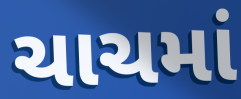
ચાચમાં